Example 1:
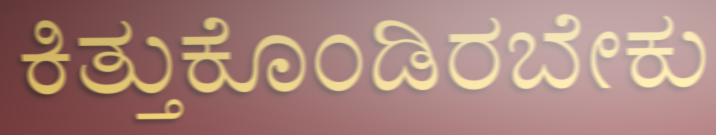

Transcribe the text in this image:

ಕಿತ್ತುಕೊಂಡಿರಬೇಕು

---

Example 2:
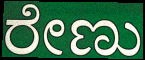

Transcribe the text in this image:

ರೇಣು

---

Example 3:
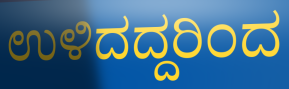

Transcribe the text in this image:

ಉಳಿದದ್ದರಿಂದ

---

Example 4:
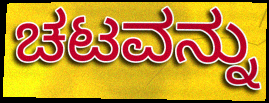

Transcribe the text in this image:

ಚಟವನ್ನು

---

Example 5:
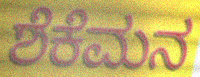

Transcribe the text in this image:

ಶೆಕೆಮನ